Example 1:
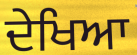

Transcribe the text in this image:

ਦੇਖਿਆ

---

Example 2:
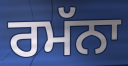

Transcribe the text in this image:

ਰਮੱਨਾ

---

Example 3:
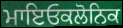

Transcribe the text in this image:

ਮਾਇਓਕਲੋਨਿਕ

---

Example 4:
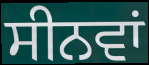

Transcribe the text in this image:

ਸੀਨਵਾਂ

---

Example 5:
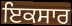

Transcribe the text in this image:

ਇਕਸਾਰ